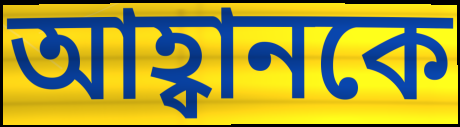
আহ্বানকে